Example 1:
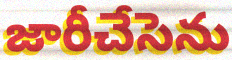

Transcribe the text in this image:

జారీచేసెను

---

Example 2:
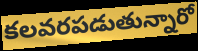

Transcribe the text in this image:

కలవరపడుతున్నారో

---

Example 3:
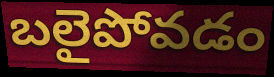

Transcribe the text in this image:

బలైపోవడం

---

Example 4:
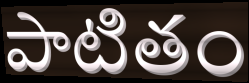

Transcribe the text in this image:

పాటితం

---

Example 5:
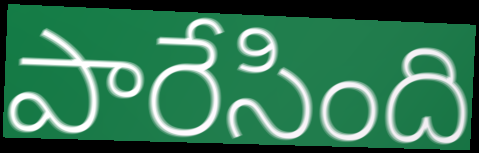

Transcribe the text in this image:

పారేసింది